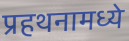
प्रहथनामध्ये